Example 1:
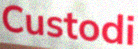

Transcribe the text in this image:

Custodi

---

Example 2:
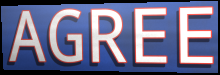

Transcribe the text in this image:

AGREE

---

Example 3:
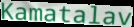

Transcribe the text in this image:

Kamatalav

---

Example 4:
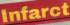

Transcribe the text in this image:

Infarct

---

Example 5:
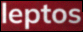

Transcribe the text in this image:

leptos